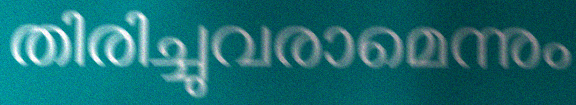
തിരിച്ചുവരാമെന്നും